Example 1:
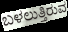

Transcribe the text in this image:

ಬಳಲುತ್ತಿರುವ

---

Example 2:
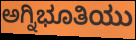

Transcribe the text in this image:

ಅಗ್ನಿಭೂತಿಯು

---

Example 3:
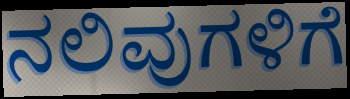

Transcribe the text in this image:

ನಲಿವುಗಳಿಗೆ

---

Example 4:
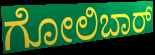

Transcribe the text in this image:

ಗೋಲಿಬಾರ್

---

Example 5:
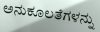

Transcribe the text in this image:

ಅನುಕೂಲತೆಗಳನ್ನು